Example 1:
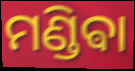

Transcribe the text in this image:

ମଣ୍ଡିଵା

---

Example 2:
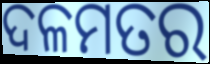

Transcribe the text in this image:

ଦଳମତର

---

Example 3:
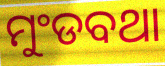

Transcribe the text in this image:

ମୁଂଡବଥା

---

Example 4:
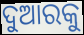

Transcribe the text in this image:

ଦୁଆରକୁ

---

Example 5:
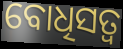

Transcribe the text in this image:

ବୋଧିସତ୍ୱ